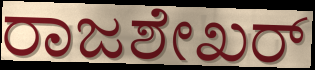
ರಾಜಶೇಖರ್